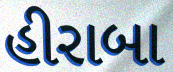
હીરાબા